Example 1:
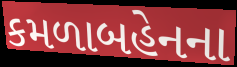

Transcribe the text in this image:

કમળાબહેનના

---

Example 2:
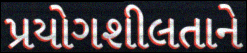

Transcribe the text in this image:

પ્રયોગશીલતાને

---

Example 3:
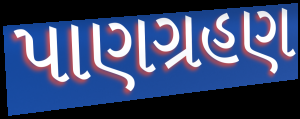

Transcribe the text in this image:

પાણગ્રહણ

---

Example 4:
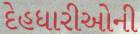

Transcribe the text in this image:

દેહધારીઓની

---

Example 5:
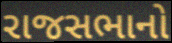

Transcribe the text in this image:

રાજસભાનો